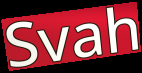
Svah